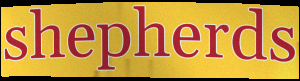
shepherds